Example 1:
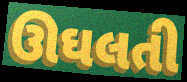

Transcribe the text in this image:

ઊઘલતી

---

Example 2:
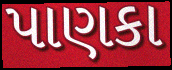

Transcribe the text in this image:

પાણકા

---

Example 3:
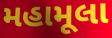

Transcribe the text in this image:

મહામૂલા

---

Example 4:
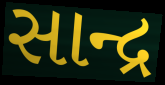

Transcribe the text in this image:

સાન્દ્ર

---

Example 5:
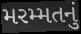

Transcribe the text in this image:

મરમ્મતનું